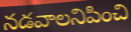
నడవాలనిపించి